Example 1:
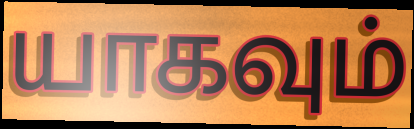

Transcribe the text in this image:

யாகவும்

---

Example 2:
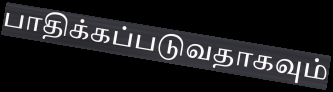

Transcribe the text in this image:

பாதிக்கப்படுவதாகவும்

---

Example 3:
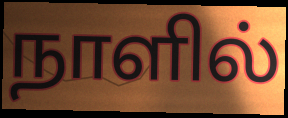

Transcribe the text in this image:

நாளில்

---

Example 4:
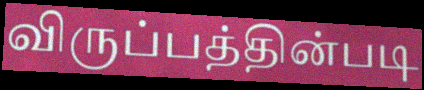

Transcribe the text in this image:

விருப்பத்தின்படி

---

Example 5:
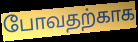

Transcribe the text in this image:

போவதற்காக